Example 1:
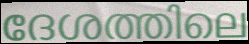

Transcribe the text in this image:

ദേശത്തിലെ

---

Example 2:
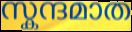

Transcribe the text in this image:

സ്കന്ദമാത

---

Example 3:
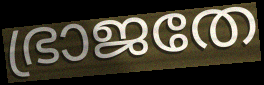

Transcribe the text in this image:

ഭ്രാജതേ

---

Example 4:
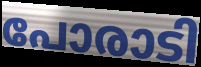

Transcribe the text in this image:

പോരാടി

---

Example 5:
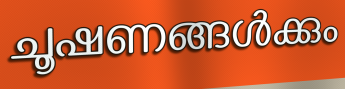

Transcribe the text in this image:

ചൂഷണങ്ങൾക്കും